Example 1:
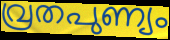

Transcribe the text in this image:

വ്രതപുണ്യം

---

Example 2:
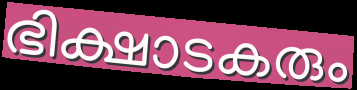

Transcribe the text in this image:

ഭിക്ഷാടകരും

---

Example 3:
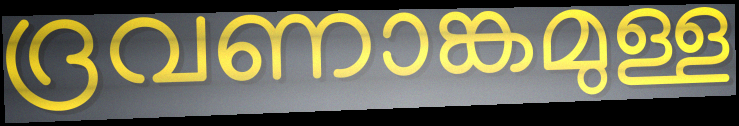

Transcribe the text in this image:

ദ്രവണാങ്കമുള്ള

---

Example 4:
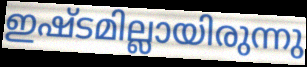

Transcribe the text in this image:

ഇഷ്ടമില്ലായിരുന്നു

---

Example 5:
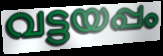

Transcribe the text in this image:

വട്ടയപ്പം